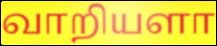
வாறியளா